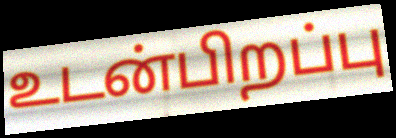
உடன்பிறப்பு